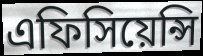
এফিসিয়েন্সি